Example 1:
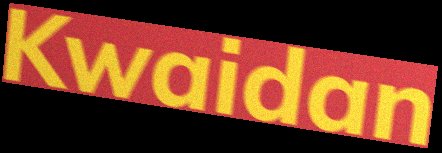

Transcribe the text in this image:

Kwaidan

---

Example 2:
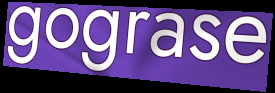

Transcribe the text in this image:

gograse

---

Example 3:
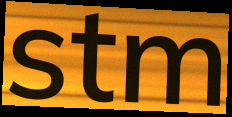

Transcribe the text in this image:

stm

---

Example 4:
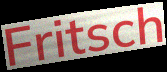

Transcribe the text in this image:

Fritsch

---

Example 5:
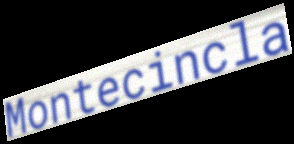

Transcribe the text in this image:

Montecincla